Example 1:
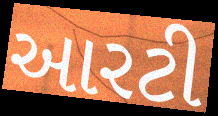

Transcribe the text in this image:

આરટી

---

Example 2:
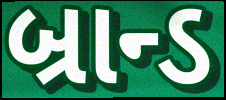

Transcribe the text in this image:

બ્રાન્ડ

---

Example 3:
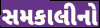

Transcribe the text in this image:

સમકાલીનો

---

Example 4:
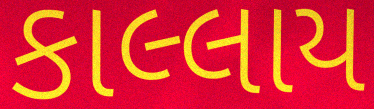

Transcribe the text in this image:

કાલ્લાય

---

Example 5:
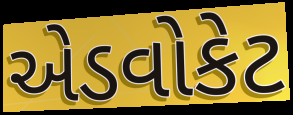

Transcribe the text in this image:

એડવોકેટ